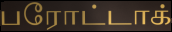
பரோட்டாக்